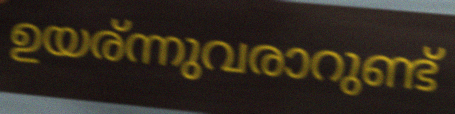
ഉയര്ന്നുവരാറുണ്ട്